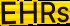
EHRs